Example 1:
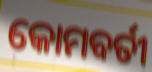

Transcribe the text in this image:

କୋମବର୍ତୀ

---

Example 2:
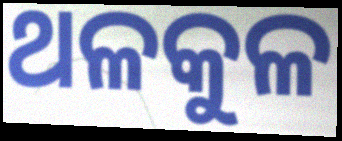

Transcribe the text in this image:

ଥଳକୁଳ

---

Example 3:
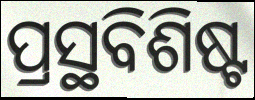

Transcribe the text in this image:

ପ୍ରସ୍ଥବିଶିଷ୍ଟ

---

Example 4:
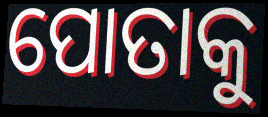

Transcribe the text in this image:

ପୋତାକୁ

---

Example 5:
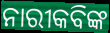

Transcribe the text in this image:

ନାରୀକବିଙ୍କ